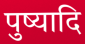
पुष्यादि